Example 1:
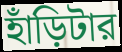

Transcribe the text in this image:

হাঁড়িটার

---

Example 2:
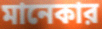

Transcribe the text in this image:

মানেকার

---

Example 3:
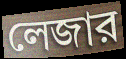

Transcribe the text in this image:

লেজার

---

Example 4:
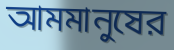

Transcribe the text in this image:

আমমানুষের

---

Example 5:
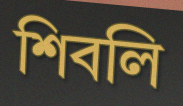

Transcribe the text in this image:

শিবলি